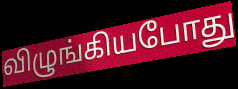
விழுங்கியபோது